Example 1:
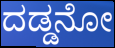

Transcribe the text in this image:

ದಡ್ಡನೋ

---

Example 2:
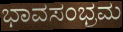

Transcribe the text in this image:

ಭಾವಸಂಭ್ರಮ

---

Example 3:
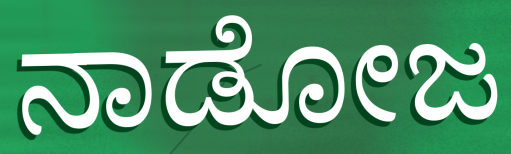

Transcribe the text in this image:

ನಾಡೋಜ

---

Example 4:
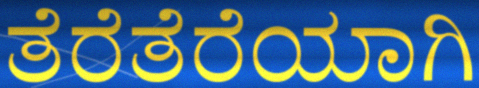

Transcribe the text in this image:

ತೆರೆತೆರೆಯಾಗಿ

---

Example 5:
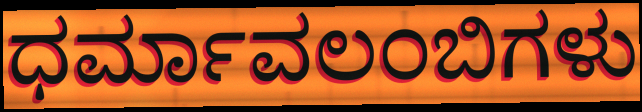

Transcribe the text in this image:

ಧರ್ಮಾವಲಂಬಿಗಳು